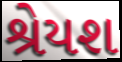
શ્રેયશ